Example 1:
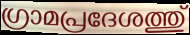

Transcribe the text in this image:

ഗ്രാമപ്രദേശത്തു്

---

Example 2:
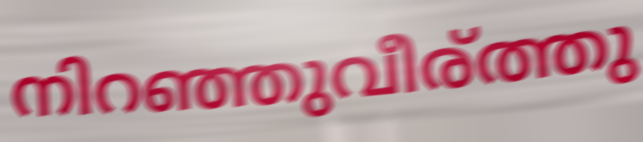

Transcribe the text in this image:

നിറഞ്ഞുവീര്ത്തു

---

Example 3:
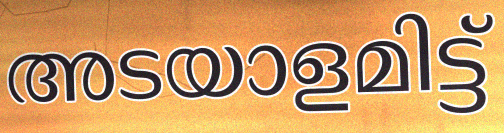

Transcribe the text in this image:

അടയാളമിട്ട്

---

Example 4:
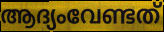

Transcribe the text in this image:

ആദ്യംവേണ്ടത്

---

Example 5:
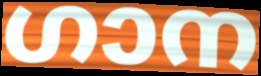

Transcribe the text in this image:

ഗാന